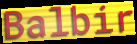
Balbir